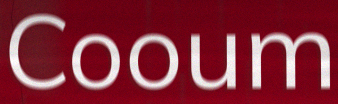
Cooum